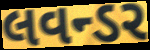
લવન્ડર